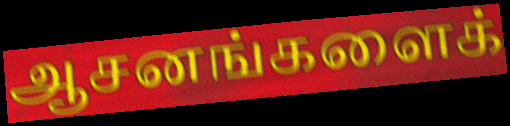
ஆசனங்களைக்